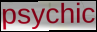
psychic